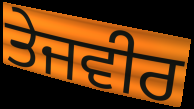
ਤੇਜਵੀਰ